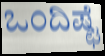
ಒಂದಿಷ್ಟೆ